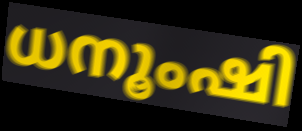
ധനൂംഷി